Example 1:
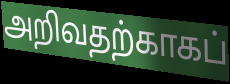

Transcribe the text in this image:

அறிவதற்காகப்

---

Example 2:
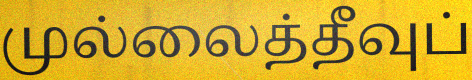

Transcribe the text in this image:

முல்லைத்தீவுப்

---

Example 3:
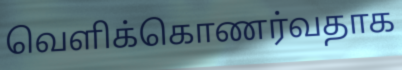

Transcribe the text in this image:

வெளிக்கொணர்வதாக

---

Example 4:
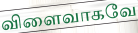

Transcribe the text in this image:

விளைவாகவே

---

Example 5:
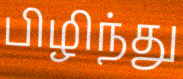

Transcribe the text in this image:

பிழிந்து